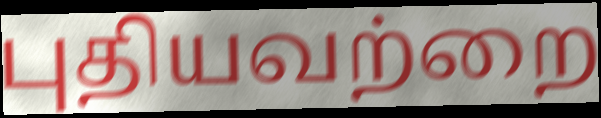
புதியவற்றை